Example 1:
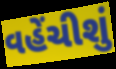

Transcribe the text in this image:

વહેંચીશું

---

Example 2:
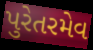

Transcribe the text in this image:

પુરેતરમેવ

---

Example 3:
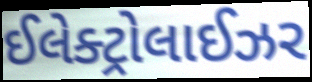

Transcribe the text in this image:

ઈલેક્ટ્રોલાઈઝર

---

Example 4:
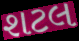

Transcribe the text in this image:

શટલ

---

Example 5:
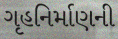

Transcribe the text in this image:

ગૃહનિર્માણની